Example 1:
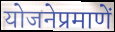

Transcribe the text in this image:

योजनेप्रमाणें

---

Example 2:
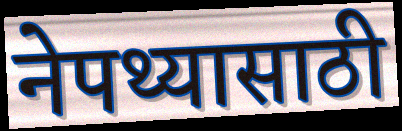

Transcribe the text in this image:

नेपथ्यासाठी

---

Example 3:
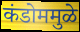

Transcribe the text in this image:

कंडोममुळे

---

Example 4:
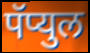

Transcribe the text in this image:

पॅप्युल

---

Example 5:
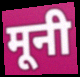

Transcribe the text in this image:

मूनी